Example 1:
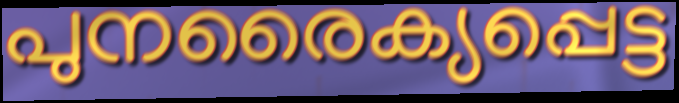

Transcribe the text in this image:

പുനരൈക്യപ്പെട്ട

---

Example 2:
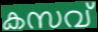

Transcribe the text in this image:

കസവ്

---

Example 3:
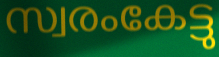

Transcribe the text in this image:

സ്വരംകേട്ടു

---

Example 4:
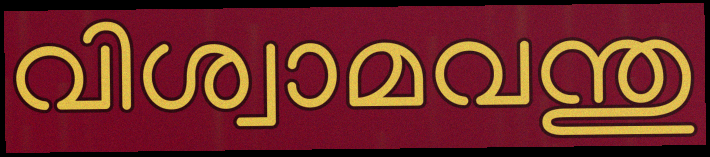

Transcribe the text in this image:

വിശ്വാമവന്തു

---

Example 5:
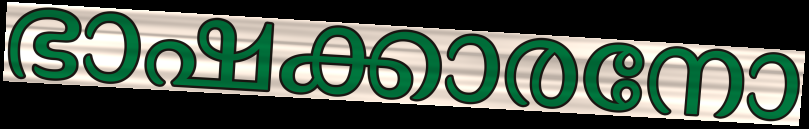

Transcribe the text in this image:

ഭാഷക്കാരനോ